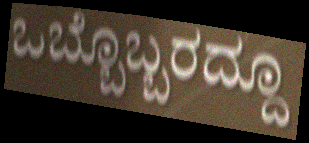
ಒಬ್ಬೊಬ್ಬರದ್ದೂ